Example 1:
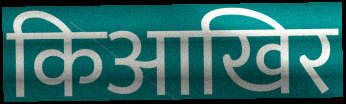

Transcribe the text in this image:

किआखिर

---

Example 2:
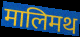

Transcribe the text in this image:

मालिमथ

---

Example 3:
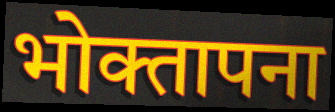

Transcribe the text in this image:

भोक्तापना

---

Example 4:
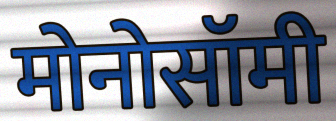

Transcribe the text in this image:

मोनोसॉमी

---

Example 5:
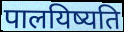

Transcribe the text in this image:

पालयिष्यति